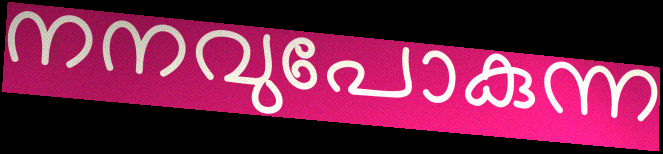
നനവുപോകുന്ന